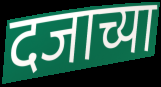
दजाच्या